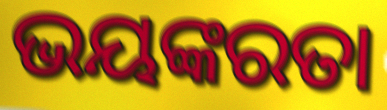
ଭୟଙ୍କରତା